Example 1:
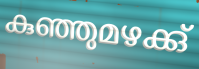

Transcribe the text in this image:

കുഞ്ഞുമഴക്കു്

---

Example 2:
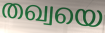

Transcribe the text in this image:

തഖ്വയെ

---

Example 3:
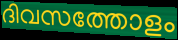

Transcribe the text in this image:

ദിവസത്തോളം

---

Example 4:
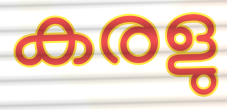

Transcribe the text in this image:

കരളു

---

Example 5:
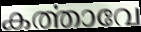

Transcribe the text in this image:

കൎത്താവേ